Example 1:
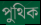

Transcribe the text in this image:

পুথিক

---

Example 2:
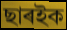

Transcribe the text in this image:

ছাৰইক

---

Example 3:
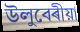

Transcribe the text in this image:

উলুবেৰীয়া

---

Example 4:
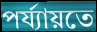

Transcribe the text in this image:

পৰ্য্যায়তে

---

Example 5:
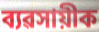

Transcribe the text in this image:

ব্যৱসায়ীক